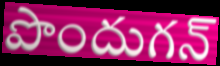
పొందుగన్